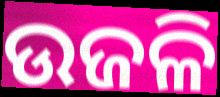
ଉଜଳି